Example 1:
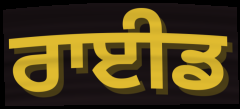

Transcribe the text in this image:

ਰਾਈਡ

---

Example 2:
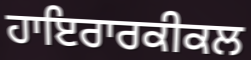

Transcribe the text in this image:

ਹਾਇਰਾਰਕੀਕਲ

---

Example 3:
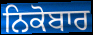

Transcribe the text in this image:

ਨਿਕੋਬਾਰ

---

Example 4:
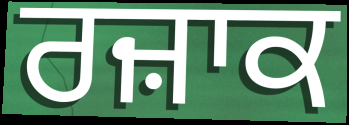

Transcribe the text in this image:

ਰਜ਼ਾਕ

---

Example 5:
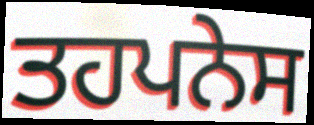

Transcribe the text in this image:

ਤਹਪਨੇਸ